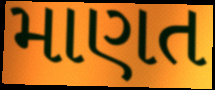
માણત